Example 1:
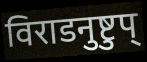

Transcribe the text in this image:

विराडनुष्टुप्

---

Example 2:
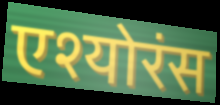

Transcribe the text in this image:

एश्योरंस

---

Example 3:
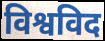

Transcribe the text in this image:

विश्वविद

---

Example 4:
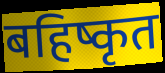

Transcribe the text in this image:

बहिष्कृत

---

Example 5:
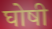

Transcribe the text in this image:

घोषी